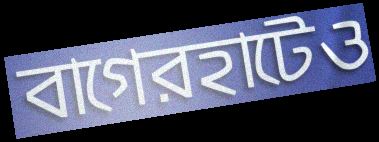
বাগেরহাটেও